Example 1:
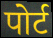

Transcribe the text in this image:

पोर्ट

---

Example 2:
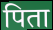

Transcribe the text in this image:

पिता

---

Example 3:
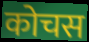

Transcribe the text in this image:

कोचस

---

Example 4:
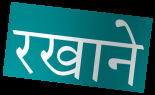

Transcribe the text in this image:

रखाने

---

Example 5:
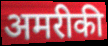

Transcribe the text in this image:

अमरीकी